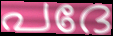
പദേ